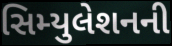
સિમ્યુલેશનની